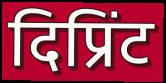
दिप्रिंट